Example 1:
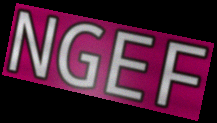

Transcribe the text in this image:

NGEF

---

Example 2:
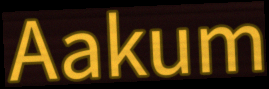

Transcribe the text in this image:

Aakum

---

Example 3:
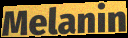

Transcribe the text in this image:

Melanin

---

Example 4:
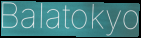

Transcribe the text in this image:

Balatokyo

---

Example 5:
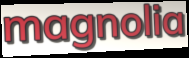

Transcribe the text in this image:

magnolia